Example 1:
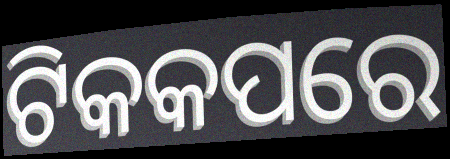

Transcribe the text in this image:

ଟିକକପରେ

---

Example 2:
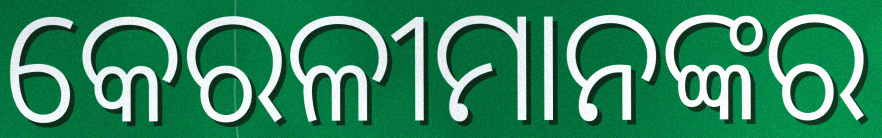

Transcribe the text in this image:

କେରଳୀମାନଙ୍କର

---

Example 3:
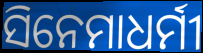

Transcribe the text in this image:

ସିନେମାଧର୍ମୀ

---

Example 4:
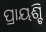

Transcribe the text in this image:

ପ୍ରାୟଶ୍ଚି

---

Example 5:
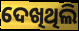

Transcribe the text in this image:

ଦେଖିଥିଲି